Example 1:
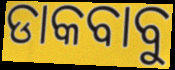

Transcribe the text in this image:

ଡାକବାବୁ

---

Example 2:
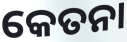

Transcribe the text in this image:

କେତନା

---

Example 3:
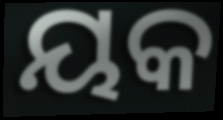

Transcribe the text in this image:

ୟକ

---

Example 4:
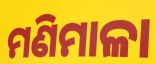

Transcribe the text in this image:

ମଣିମାଳା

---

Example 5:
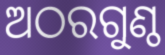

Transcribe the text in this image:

ଅଠରଗୁଣ୍ଠ